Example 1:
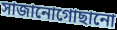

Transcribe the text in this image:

সাজানোগোছানো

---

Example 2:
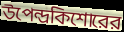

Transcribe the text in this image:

উপেন্দ্রকিশোরের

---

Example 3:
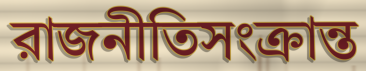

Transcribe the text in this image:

রাজনীতিসংক্রান্ত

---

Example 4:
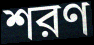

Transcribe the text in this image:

শরণ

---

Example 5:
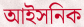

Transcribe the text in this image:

আইসনিক